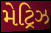
મેટ્રિઝ